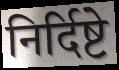
निर्दिष्टे